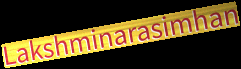
Lakshminarasimhan